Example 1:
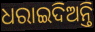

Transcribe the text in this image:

ଧରାଇଦିଅନ୍ତି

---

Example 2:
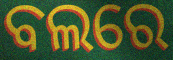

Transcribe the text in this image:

ବଲରେ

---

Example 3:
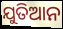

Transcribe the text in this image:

ଯୁତିଆନ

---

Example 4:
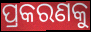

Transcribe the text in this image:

ପ୍ରକରଣକୁ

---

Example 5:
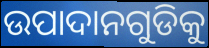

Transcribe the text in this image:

ଉପାଦାନଗୁଡିକୁ